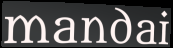
mandai